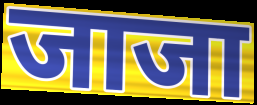
जाजा